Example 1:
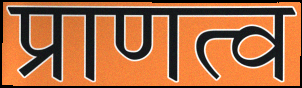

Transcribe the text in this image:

प्राणत्व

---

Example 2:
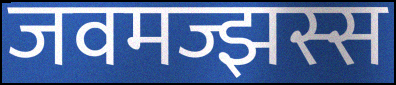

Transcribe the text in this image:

जवमज्झस्स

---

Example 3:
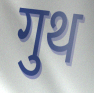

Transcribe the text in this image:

गुथ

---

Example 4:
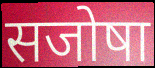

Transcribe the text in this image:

सजोषा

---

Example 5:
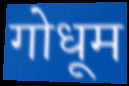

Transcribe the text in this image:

गोधूम